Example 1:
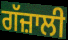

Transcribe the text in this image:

ਗੱਜ਼ਾਲੀ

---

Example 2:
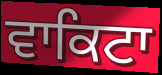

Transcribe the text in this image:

ਵਾਕਿਟਾ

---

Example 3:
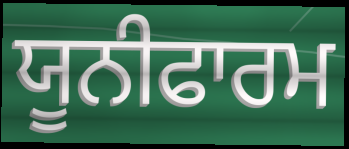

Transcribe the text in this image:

ਯੂਨੀਫਾਰਮ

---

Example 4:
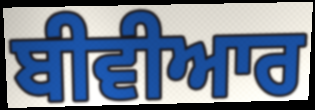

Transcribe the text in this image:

ਬੀਵੀਆਰ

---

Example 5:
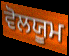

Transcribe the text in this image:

ਵੋਲਯੂਮ